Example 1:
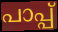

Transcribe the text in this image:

പാപ്പ്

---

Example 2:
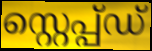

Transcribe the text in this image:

സ്റ്റെപ്പ്ഡ്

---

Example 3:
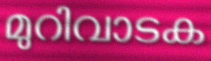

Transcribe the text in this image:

മുറിവാടക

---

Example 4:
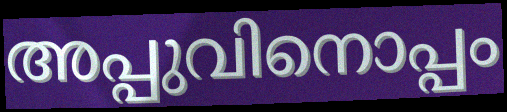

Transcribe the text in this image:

അപ്പുവിനൊപ്പം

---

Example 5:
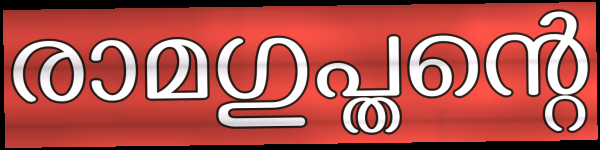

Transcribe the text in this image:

രാമഗുപ്തന്റെ